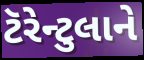
ટૅરેન્ટુલાને